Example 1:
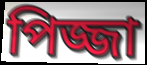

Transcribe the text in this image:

পিজ্জা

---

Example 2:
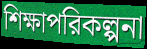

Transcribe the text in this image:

শিক্ষাপরিকল্পনা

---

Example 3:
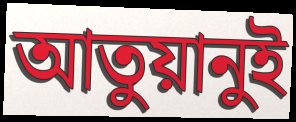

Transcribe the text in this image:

আতুয়ানুই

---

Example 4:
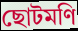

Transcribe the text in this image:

ছোটমণি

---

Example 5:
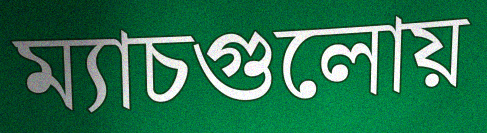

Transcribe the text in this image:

ম্যাচগুলোয়